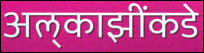
अल्काझींकडे